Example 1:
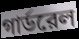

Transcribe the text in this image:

গার্ডরেল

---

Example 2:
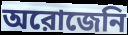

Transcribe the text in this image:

অরোজেনি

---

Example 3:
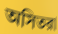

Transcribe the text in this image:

অসিতরা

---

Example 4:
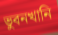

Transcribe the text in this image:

ভুবনখানি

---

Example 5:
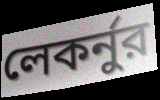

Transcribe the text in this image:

লেকর্নুর